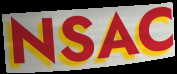
NSAC